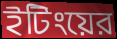
ইটিংয়ের